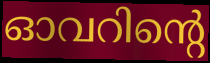
ഓവറിന്റെ